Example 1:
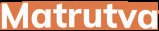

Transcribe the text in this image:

Matrutva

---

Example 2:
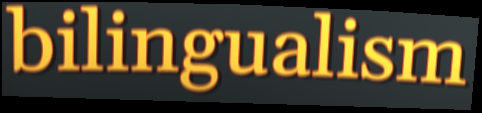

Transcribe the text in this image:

bilingualism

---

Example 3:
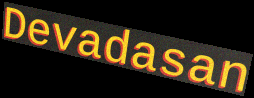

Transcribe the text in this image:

Devadasan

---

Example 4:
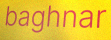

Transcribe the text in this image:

baghnar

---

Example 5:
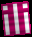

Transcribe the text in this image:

ili